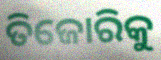
ତିଜୋରିକୁ